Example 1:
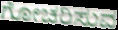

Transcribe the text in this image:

ಗೋಚರಿಸುವ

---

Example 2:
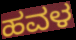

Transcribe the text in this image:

ಹವಳ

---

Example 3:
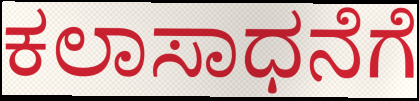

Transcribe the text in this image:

ಕಲಾಸಾಧನೆಗೆ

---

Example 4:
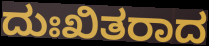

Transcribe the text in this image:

ದುಃಖಿತರಾದ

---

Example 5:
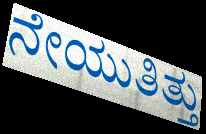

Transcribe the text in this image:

ನೇಯುತಿತ್ತು